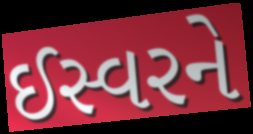
ઈસ્વરને